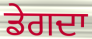
ਡੇਗਦਾ